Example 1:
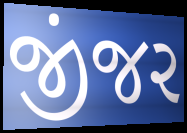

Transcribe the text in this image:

જીંજર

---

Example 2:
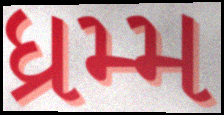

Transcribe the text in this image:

ધ્રમ્મ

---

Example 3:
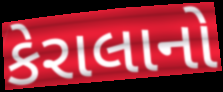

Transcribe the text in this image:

કેરાલાનો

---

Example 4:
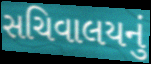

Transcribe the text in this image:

સચિવાલયનું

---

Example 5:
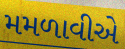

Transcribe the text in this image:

મમળાવીએ